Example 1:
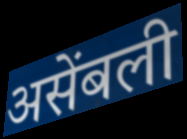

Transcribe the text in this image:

असेंबली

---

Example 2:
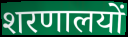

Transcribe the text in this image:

शरणालयों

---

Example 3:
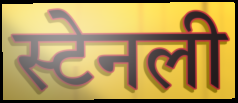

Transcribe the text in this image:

स्टेनली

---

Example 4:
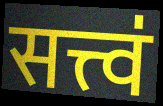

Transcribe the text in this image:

सत्त्व॑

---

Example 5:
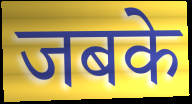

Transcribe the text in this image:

जबके